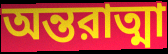
অন্তরাত্মা